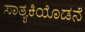
ಸಾತ್ಯಕಿಯೊಡನೆ